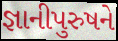
જ્ઞાનીપુરુષને